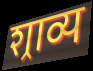
श्राव्य